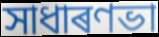
সাধাৰণভা